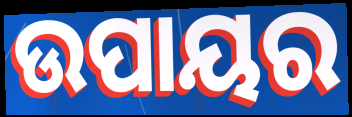
ଉପାୟର